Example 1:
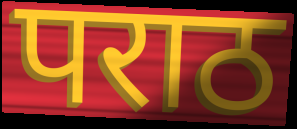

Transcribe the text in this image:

पराठ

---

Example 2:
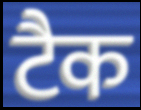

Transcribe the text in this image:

टैक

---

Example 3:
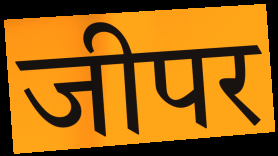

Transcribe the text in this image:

जीपर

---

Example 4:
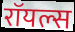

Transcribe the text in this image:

रॉयल्‍स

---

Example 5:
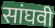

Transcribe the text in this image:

सांघवी